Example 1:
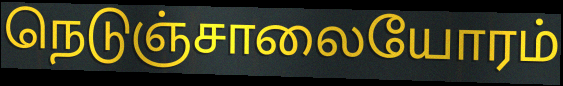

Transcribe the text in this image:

நெடுஞ்சாலையோரம்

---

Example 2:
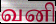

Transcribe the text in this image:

வனி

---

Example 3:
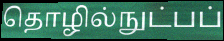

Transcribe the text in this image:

தொழில்நுட்பப்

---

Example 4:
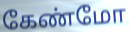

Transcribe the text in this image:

கேண்மோ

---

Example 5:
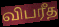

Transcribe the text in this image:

விபரீத